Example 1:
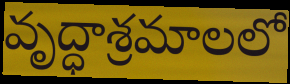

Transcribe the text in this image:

వృద్ధాశ్రమాలలో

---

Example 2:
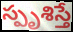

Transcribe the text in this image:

స్పృశిస్తే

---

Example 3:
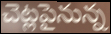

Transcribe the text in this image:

చెట్లపైనున్న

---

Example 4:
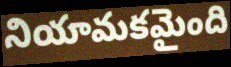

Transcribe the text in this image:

నియామకమైంది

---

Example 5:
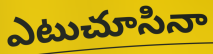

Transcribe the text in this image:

ఎటుచూసినా